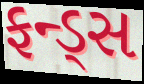
ફન્ડ્સ